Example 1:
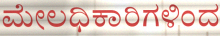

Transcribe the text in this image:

ಮೇಲಧಿಕಾರಿಗಳಿಂದ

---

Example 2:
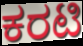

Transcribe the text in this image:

ಕರಟಿ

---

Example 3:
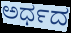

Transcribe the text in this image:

ಅರ್ಧದ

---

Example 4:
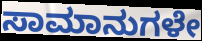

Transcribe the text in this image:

ಸಾಮಾನುಗಳೇ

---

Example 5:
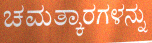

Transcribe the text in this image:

ಚಮತ್ಕಾರಗಳನ್ನು